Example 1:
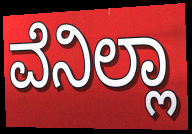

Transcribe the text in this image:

ವೆನಿಲ್ಲಾ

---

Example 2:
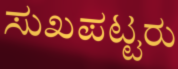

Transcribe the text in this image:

ಸುಖಪಟ್ಟರು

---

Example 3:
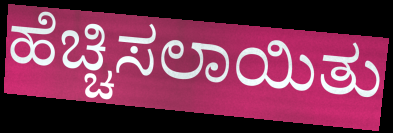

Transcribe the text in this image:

ಹೆಚ್ಚಿಸಲಾಯಿತು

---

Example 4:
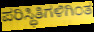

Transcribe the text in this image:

ಪರಿಸ್ಥಿತಿಗಳಿಗಿಂತ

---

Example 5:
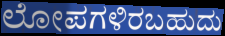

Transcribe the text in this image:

ಲೋಪಗಳಿರಬಹುದು